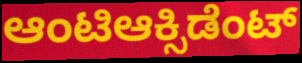
ಆಂಟಿಆಕ್ಸಿಡೆಂಟ್